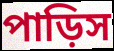
পাড়িস